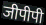
जीपीपी